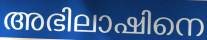
അഭിലാഷിനെ